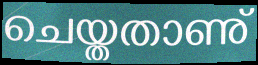
ചെയ്തതാണു്